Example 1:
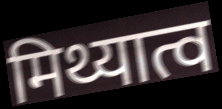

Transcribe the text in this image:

मिथ्यात्व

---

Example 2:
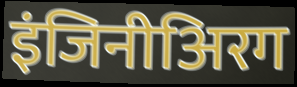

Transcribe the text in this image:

इंजिनीअिरग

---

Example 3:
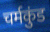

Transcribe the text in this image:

चर्मकुंड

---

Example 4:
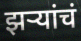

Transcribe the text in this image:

झर्‍यांचं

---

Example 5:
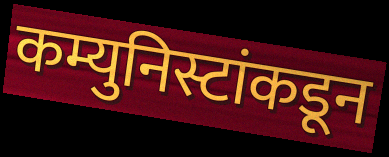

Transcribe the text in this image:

कम्युनिस्टांकडून